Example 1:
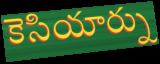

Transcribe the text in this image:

కెసియార్ను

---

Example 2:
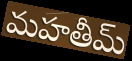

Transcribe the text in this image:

మహతీమ్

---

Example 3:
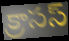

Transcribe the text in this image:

క్రాసస్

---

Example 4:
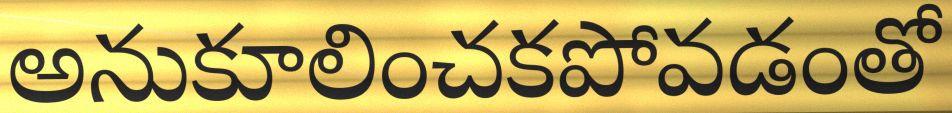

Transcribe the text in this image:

అనుకూలించకపోవడంతో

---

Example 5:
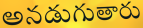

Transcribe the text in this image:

అనడుగుతారు